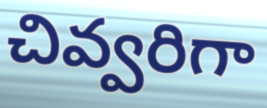
చివ్వరిగా